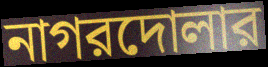
নাগরদোলার